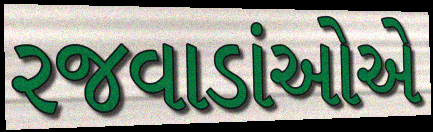
રજવાડાંઓએ